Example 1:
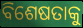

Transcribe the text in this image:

ବିଶେଷତାକୁ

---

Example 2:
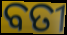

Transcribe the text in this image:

ବତୀ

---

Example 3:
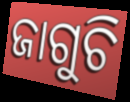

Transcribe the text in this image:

ଜାଗୁଚି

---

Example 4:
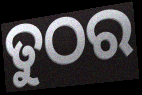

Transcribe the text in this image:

ତୁଠର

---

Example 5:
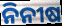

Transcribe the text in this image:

ନିନୀଷ